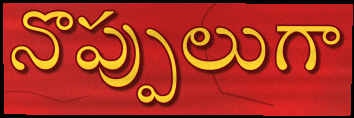
నొప్పులుగా